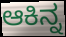
ಆಕಿನ್ನ